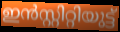
ഇൻസ്റ്റിറ്റിയുട്ട്